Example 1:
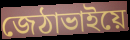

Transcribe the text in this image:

জেঠাভাইয়ে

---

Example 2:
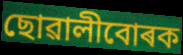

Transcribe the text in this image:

ছোৱালীবোৰক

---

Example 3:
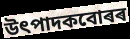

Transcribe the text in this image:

উৎপাদকবোৰৰ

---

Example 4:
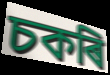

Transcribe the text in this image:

চকৰি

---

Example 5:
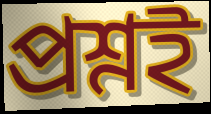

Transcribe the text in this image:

প্ৰশ্নই